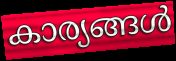
കാര്യങ്ങൾ